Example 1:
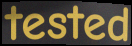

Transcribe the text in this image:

tested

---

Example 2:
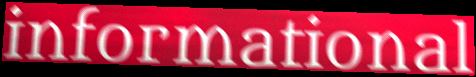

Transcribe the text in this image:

informational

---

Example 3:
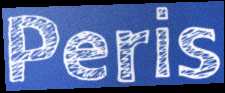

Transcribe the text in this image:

Peris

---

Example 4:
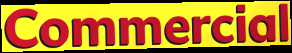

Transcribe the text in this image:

Commercial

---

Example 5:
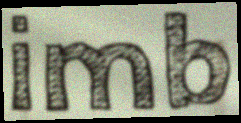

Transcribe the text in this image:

imb